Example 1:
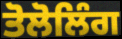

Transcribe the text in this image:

ਤੋਲੋਲਿੰਗ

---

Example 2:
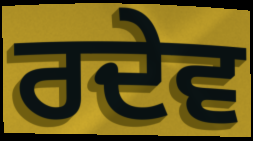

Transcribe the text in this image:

ਰਦੇਵ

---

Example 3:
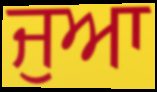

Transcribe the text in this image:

ਜੁਆ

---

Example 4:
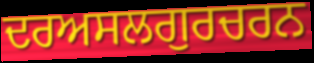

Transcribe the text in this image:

ਦਰਅਸਲਗੁਰਚਰਨ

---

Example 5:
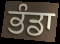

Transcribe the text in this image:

ਭੰਡਾ